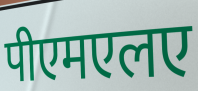
पीएमएलए